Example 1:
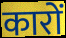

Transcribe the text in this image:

कारों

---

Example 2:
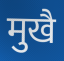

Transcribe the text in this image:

मुखै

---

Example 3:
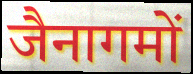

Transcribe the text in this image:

जैनागमों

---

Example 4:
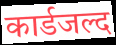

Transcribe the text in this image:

कार्डजल्द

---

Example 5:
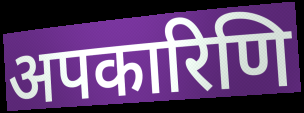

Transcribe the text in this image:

अपकारिणि